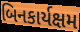
બિનકાર્યક્ષમ